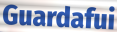
Guardafui